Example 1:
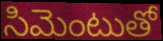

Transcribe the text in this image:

సిమెంటుతో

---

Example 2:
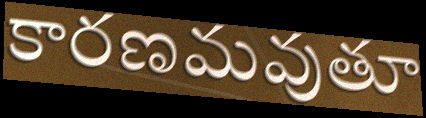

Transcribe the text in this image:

కారణమవుతూ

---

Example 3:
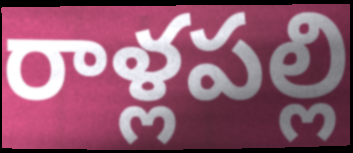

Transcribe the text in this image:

రాళ్లపల్లి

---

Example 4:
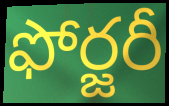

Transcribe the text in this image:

ఫోర్జరీ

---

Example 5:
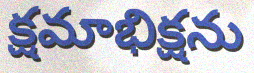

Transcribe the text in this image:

క్షమాభిక్షను